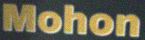
Mohon